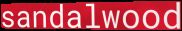
sandalwood